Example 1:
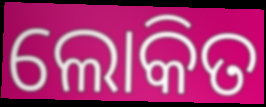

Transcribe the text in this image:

ଲୋକିତ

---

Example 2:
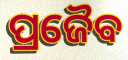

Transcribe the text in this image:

ପ୍ରଜୈବ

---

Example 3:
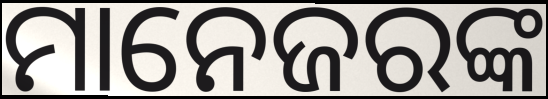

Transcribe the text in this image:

ମାନେଜରଙ୍କ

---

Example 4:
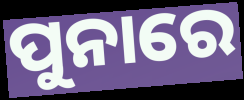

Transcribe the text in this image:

ପୁନାରେ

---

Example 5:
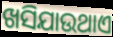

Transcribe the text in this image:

ଖସିଯାଉଥାଏ